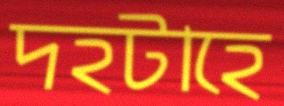
দহটাহে